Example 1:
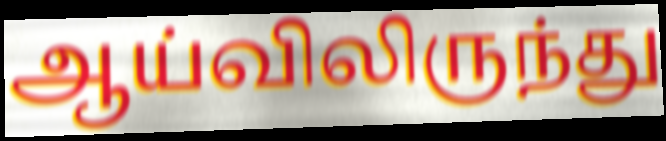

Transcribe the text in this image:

ஆய்விலிருந்து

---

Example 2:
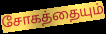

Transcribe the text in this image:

சோகத்தையும்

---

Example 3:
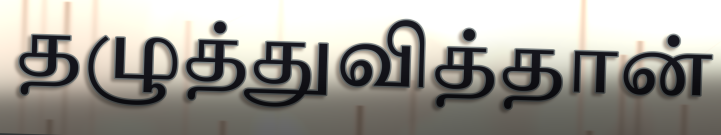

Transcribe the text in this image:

தழுத்துவித்தான்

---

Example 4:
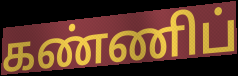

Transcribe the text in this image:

கண்ணிப்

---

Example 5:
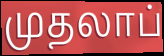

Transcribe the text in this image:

முதலாப்